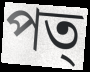
পত্